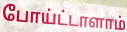
போய்ட்டாளாம்